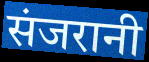
संजरानी